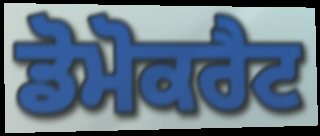
ਡੋਮੋਕਰੈਟ